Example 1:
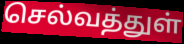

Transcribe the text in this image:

செல்வத்துள்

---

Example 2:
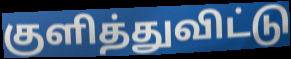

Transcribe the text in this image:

குளித்துவிட்டு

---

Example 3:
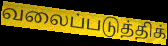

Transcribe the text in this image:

வலைப்படுத்திக்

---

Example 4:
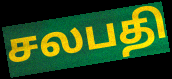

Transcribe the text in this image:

சலபதி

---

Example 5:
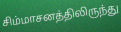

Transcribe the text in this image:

சிம்மாசனத்திலிருந்து